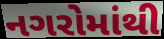
નગરોમાંથી